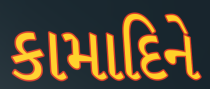
કામાદિને